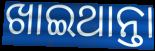
ଖାଇଥାନ୍ତା